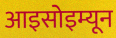
आइसोइम्यून